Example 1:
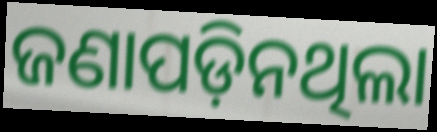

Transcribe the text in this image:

ଜଣାପଡ଼ିନଥିଲା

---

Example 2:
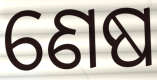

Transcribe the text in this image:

ଣେଷ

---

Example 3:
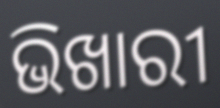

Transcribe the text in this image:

ଭିଖାରୀ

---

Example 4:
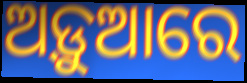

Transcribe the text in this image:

ଅଡ଼ୁଆରେ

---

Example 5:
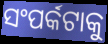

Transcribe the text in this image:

ସଂପର୍କଟାକୁ